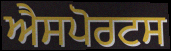
ਐਸਪੋਰਟਸ